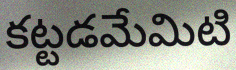
కట్టడమేమిటి